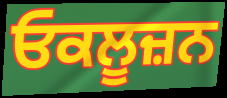
ਓਕਲੂਜ਼ਨ